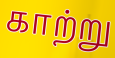
காற்று